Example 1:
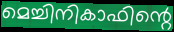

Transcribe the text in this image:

മെച്ചിനികാഫിന്റെ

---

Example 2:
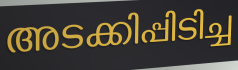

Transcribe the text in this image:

അടക്കിപ്പിടിച്ച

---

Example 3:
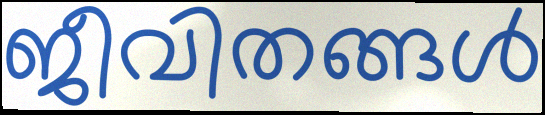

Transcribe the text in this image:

ജീവിതങ്ങൾ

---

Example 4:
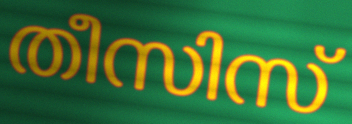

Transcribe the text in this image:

തീസിസ്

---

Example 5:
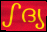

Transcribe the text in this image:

ഽദ്യ